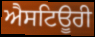
ਐਸਟਿਊਰੀ